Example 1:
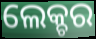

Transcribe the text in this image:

ଲେକ୍ଚର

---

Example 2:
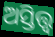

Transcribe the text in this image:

ଅସ୍ତିତ୍ତ୍ବ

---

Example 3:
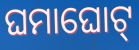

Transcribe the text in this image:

ଘମାଘୋଟ୍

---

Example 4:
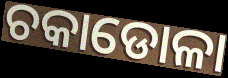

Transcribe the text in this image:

ଚକାଡୋଳା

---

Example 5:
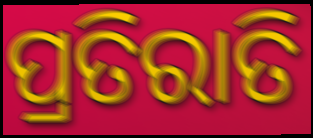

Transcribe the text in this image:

ପ୍ରତିରାତି